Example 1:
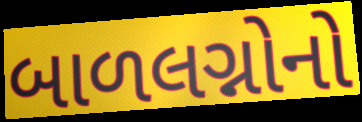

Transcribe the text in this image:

બાળલગ્નોનો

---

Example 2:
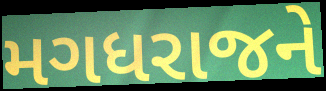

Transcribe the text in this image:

મગધરાજને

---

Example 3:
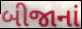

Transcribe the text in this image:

બીજાનાં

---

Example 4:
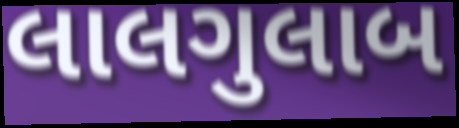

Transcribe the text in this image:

લાલગુલાબ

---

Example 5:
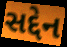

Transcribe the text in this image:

સદ્દેન